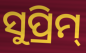
ସୁପ୍ରିମ୍